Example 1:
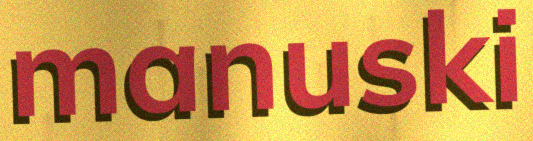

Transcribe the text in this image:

manuski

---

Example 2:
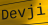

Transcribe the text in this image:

Devji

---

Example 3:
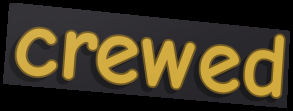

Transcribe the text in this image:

crewed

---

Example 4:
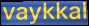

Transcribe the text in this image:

vaykkal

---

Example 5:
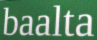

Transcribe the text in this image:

baalta